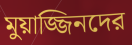
মুয়াজ্জিনদের